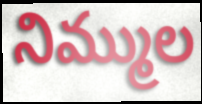
నిమ్ముల